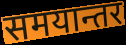
समयान्तर